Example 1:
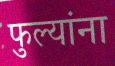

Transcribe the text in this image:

फुल्यांना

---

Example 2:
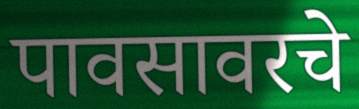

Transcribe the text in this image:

पावसावरचे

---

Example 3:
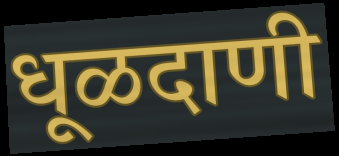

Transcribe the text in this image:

धूळदाणी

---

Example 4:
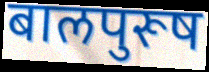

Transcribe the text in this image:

बालपुरूष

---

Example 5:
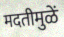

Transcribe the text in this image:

मदतीमुळें